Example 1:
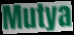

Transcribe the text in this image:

Mutya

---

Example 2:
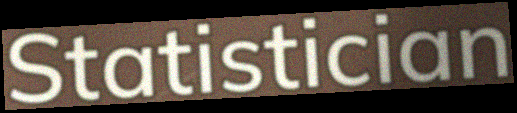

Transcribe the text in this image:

Statistician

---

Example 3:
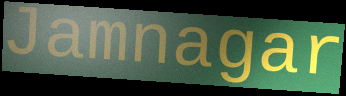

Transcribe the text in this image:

Jamnagar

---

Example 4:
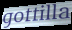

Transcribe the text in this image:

gottilla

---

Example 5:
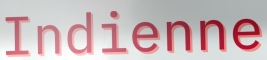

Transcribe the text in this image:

Indienne